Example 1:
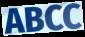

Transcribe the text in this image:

ABCC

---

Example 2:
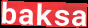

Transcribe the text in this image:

baksa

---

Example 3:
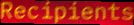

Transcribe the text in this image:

Recipients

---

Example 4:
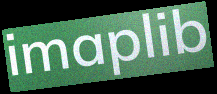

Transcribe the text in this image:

imaplib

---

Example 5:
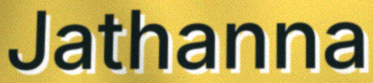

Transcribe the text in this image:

Jathanna